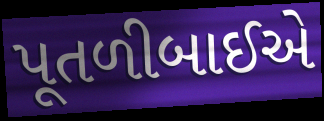
પૂતળીબાઈએ